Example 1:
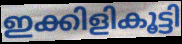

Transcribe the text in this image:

ഇക്കിളികൂട്ടി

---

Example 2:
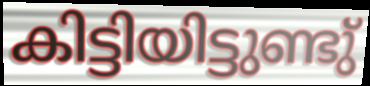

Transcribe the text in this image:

കിട്ടിയിട്ടുണ്ടു്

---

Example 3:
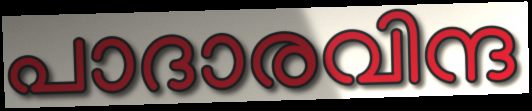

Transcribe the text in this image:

പാദാരവിന്ദ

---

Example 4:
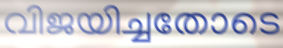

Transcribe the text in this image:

വിജയിച്ചതോടെ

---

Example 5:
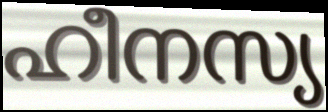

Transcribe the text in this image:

ഹീനസ്യ